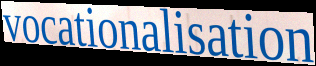
vocationalisation